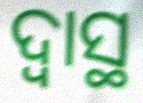
ଦ୍ୱାସ୍ଥ